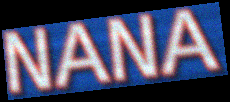
NANA